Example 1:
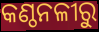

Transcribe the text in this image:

କଣ୍ଠନଳୀରୁ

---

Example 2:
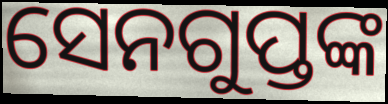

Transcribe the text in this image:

ସେନଗୁପ୍ତଙ୍କ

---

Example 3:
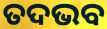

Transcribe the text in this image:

ତଦଭବ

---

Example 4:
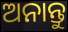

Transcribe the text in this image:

ଅନାନ୍ତୁ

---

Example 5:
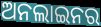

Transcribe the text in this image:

ଅନଲାଇନର